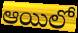
ఆయిలో